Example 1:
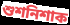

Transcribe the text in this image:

শুশনিশাক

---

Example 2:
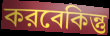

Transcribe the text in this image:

করবেকিন্তু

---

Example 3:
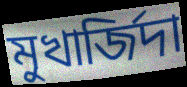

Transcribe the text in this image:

মুখার্জিদা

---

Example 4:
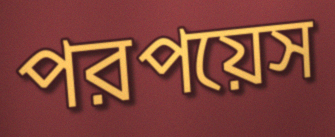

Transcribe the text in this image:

পরপয়েস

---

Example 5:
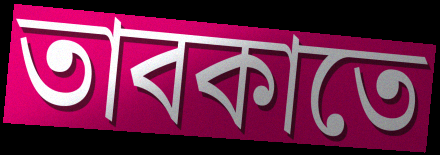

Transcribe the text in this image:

তাবকাতে